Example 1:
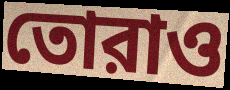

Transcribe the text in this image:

তোরাও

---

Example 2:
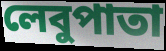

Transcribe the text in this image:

লেবুপাতা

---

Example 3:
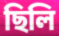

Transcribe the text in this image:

ছিলি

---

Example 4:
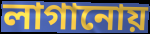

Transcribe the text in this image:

লাগানোয়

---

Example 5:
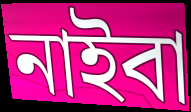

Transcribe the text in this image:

নাইবা